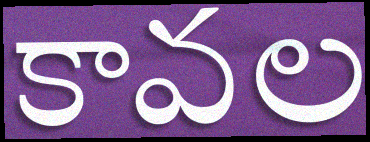
కావల